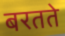
बरतते